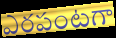
ఎరపంటగా